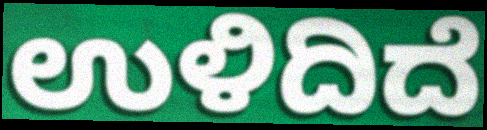
ಉಳಿದಿದೆ